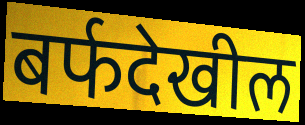
बर्फदेखील